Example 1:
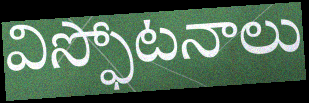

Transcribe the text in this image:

విస్ఫోటనాలు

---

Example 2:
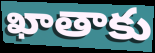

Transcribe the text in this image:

ఖాతాకు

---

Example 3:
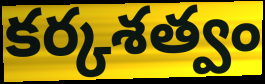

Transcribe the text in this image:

కర్కశత్వం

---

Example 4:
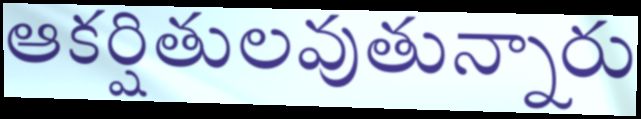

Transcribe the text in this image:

ఆకర్షితులవుతున్నారు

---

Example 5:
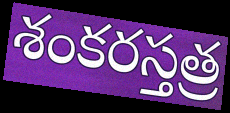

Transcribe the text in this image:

శంకరస్తత్ర